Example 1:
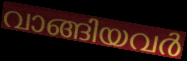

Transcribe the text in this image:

വാങ്ങിയവർ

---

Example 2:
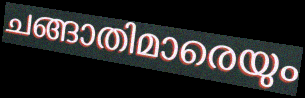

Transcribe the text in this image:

ചങ്ങാതിമാരെയും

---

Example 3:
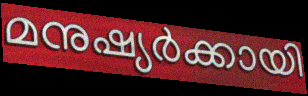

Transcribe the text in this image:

മനുഷ്യർക്കായി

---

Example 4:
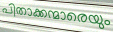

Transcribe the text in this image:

പിതാക്കന്മാരെയും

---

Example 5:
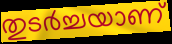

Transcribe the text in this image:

തുടർച്ചയാണ്